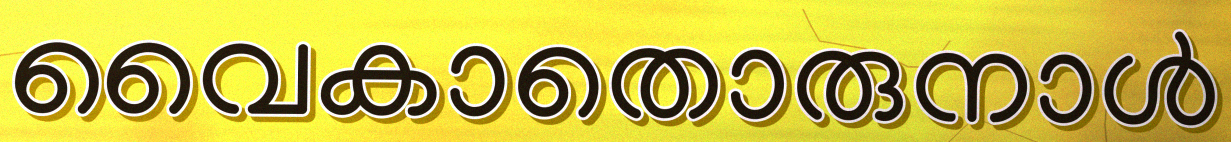
വൈകാതൊരുനാൾ